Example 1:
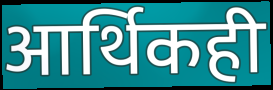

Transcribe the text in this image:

आर्थिकही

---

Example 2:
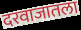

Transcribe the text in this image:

दरवाजातला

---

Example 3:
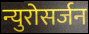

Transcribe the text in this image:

न्युरोसर्जन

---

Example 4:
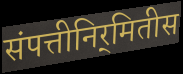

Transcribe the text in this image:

संपत्तीनिर्मितीस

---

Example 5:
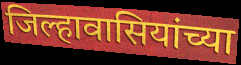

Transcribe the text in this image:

जिल्हावासियांच्या